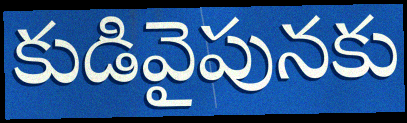
కుడివైపునకు